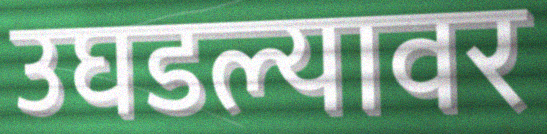
उघडल्यावर